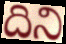
దిని